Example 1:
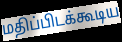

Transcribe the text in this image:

மதிப்பிடக்கூடிய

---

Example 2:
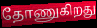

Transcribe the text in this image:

தோணுகிறது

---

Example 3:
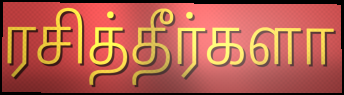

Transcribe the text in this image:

ரசித்தீர்களா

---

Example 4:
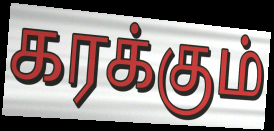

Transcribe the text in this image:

கரக்கும்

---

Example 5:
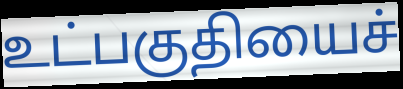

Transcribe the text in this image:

உட்பகுதியைச்